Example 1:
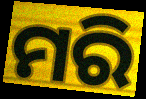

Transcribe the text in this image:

ମରି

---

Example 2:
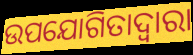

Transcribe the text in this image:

ଉପଯୋଗିତାଦ୍ୱାରା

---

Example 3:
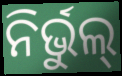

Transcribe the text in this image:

ନିର୍ଭୁଲ୍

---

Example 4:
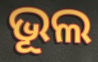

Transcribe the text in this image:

ଭୂଲ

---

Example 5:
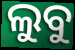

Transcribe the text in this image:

ଲୁବୁ